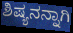
ಶಿಷ್ಯನನ್ನಾಗಿ